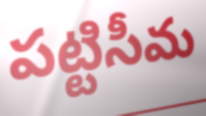
పట్టిసీమ